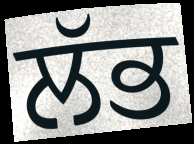
ਲੱਭ